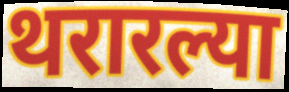
थरारल्या